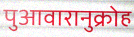
पुआवारानुक्रोह